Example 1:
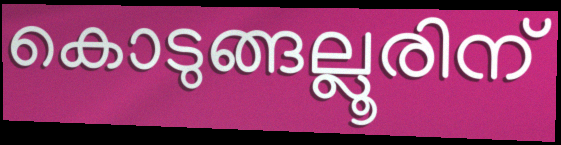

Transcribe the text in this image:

കൊടുങ്ങല്ലൂരിന്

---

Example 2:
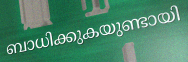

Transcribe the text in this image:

ബാധിക്കുകയുണ്ടായി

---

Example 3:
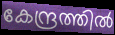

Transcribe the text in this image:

കേന്ദ്രത്തിൽ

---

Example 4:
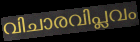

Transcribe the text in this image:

വിചാരവിപ്ലവം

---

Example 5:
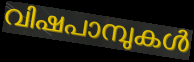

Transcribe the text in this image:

വിഷപാമ്പുകൾ